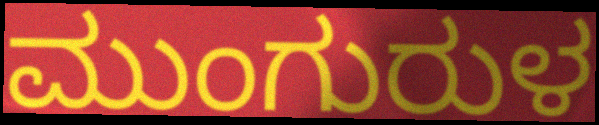
ಮುಂಗುರುಳ